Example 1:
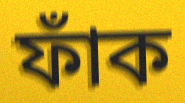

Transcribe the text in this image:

ফাঁক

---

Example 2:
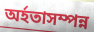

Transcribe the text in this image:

অৰ্হতাসম্পন্ন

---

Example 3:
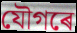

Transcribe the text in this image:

যৌগৰে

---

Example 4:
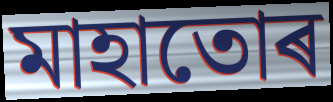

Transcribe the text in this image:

মাহাতোৰ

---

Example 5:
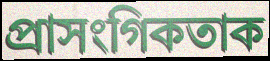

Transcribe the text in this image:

প্ৰাসংগিকতাক